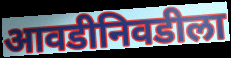
आवडीनिवडीला